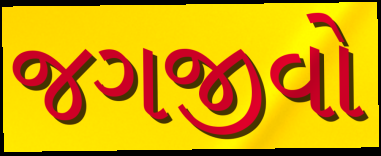
જગજીવો